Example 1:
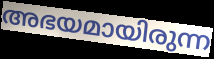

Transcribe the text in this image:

അഭയമായിരുന്ന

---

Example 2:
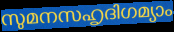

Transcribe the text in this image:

സുമനസഹൃദിഗമ്യാം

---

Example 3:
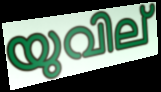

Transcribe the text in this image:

യുവില്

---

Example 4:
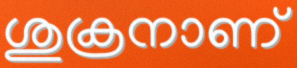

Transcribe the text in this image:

ശുക്രനാണ്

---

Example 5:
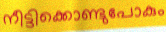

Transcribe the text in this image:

നീട്ടിക്കൊണ്ടുപോകും